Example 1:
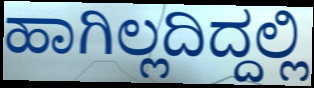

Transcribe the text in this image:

ಹಾಗಿಲ್ಲದಿದ್ದಲ್ಲಿ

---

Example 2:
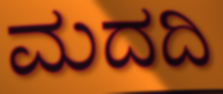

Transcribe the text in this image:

ಮದದಿ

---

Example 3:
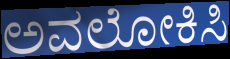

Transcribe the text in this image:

ಅವಲೋಕಿಸಿ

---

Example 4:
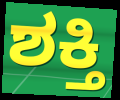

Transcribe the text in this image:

ಶಕ್ತಿ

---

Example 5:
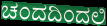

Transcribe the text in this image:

ಚಂದದಿಂದಲಿ